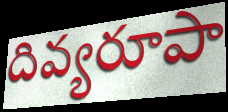
దివ్యరూపా